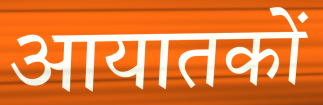
आयातकों